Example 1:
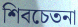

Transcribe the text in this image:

শিবচেতনা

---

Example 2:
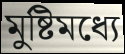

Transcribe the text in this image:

মুষ্টিমধ্যে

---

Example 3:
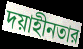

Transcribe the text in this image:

দয়াহীনতার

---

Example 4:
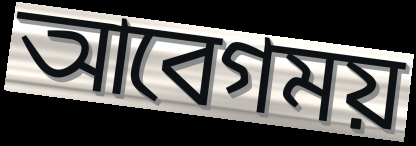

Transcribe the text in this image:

আবেগময়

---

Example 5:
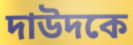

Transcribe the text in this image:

দাউদকে